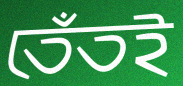
তেঁতই